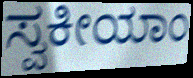
ಸ್ವಕೀಯಾಂ